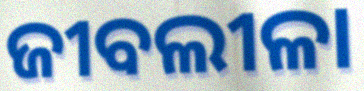
ଜୀବଲୀଳା